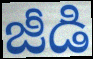
జీడి